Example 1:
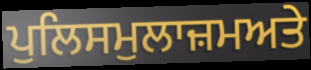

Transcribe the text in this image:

ਪੁਲਿਸਮੁਲਾਜ਼ਮਅਤੇ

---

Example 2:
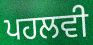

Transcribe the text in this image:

ਪਹਲਵੀ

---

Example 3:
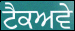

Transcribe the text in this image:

ਟੈਕਅਵੇ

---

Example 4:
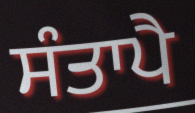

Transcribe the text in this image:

ਸੰਤਾਪੈ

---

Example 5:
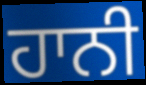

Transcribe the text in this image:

ਹਾਨੀ